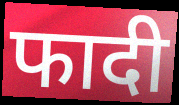
फादी